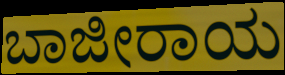
ಬಾಜೀರಾಯ